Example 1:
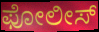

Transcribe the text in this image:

ಫೋಲೀಸ್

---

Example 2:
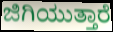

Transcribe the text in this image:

ಜಿಗಿಯುತ್ತಾರೆ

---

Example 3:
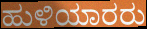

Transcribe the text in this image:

ಹುಳಿಯಾರರು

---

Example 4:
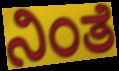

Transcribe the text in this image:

ನಿಂತೆ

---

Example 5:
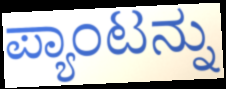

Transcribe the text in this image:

ಪ್ಯಾಂಟನ್ನು